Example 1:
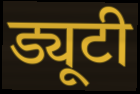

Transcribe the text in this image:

ड्यूटी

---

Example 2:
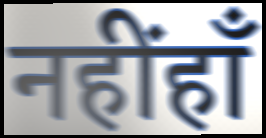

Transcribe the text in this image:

नहींहाँ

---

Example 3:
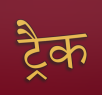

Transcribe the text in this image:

ट्रैक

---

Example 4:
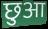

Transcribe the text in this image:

छुआ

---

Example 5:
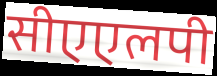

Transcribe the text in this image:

सीएएलपी